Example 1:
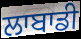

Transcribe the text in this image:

ਲਾਬਾਡੀ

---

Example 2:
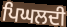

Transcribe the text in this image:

ਪਿਘਲਦੀ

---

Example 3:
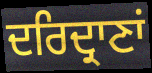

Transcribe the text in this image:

ਦਰਿਦ੍ਰਾਣਾਂ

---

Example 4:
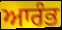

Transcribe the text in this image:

ਆਰੰਭ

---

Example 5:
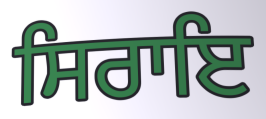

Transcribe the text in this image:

ਸਿਰਾਇ